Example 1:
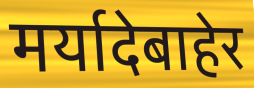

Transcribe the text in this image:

मर्यादेबाहेर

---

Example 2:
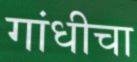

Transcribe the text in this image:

गांधीचा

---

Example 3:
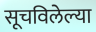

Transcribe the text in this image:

सूचविलेल्या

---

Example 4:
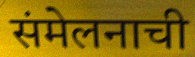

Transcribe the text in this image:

संमेलनाची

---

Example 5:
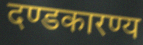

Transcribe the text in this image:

दण्डकारण्य